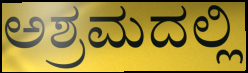
ಅಶ್ರಮದಲ್ಲಿ